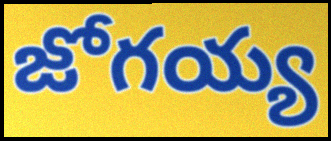
జోగయ్య